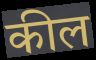
कील